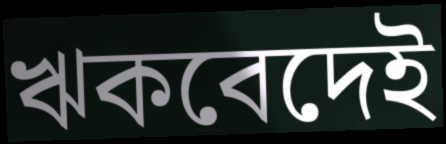
ঋকবেদেই